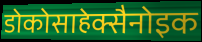
डोकोसाहेक्सैनोइक